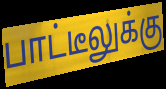
பாட்டீலுக்கு